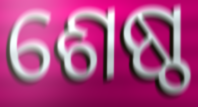
ଶେଷ୍ଠ